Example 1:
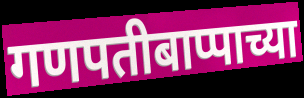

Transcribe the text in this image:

गणपतीबाप्पाच्या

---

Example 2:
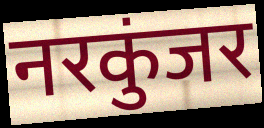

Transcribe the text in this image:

नरकुंजर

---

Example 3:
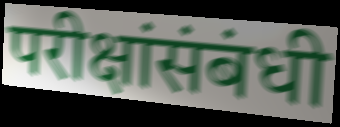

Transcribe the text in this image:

परीक्षांसंबंधी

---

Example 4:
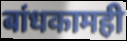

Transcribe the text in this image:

बांधकामही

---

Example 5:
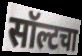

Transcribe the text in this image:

सॉल्टचा